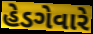
હેડગેવારે